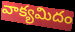
వాక్యమిదం